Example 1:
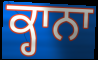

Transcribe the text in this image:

ਕ੍ਹਾਨਾ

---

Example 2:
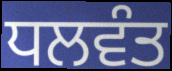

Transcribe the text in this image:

ਧਲਵੰਤ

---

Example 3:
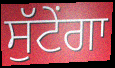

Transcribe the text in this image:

ਸੁੱਟੇਂਗਾ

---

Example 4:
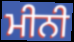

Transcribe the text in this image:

ਮੀਨੀ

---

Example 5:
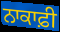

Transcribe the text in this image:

ਨਾਕਾਫ਼ੀ